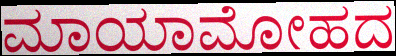
ಮಾಯಾಮೋಹದ